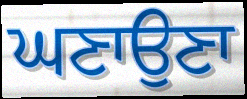
ਘਣਾਉਣਾ